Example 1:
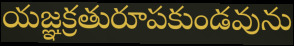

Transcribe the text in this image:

యజ్ఞక్రతురూపకుండవును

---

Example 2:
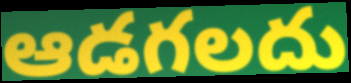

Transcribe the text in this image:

ఆడగలదు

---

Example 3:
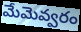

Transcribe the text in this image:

మేమెవ్వరం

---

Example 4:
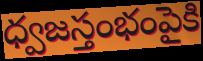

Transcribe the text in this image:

ధ్వజస్తంభంపైకి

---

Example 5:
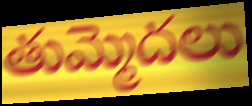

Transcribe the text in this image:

తుమ్మెదలు